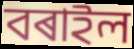
বৰাইল